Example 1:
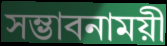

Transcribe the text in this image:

সম্ভাবনাময়ী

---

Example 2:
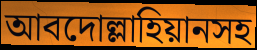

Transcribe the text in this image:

আবদোল্লাহিয়ানসহ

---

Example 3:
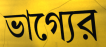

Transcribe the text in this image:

ভাগ্যের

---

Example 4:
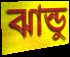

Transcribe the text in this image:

ঝান্ডু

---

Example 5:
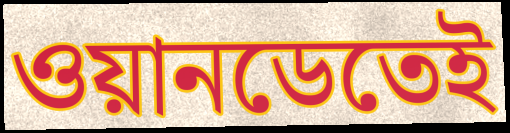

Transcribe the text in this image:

ওয়ানডেতেই